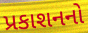
પ્રકાશનનો